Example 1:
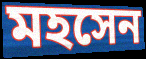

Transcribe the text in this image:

মহসেন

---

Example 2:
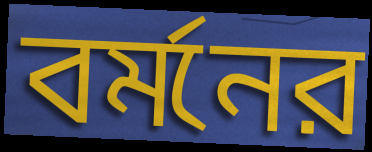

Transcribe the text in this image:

বর্মনের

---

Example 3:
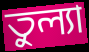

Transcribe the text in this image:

তুল্যা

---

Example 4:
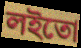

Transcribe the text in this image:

লইতো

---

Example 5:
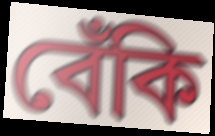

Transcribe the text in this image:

বেঁকি